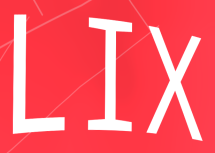
LIX